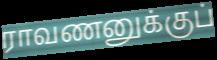
ராவணனுக்குப்